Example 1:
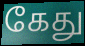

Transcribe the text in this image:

கேது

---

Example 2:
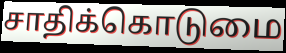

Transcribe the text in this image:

சாதிக்கொடுமை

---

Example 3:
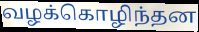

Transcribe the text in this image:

வழக்கொழிந்தன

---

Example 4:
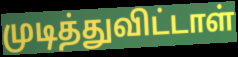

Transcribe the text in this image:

முடித்துவிட்டாள்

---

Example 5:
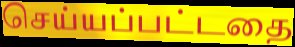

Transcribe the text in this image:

செய்யப்பட்டதை